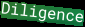
Diligence